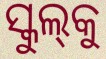
ସ୍କୁଲ୍‌କୁ